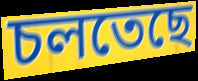
চলতেছে